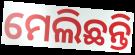
ମେଲିଛନ୍ତି